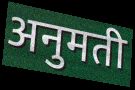
अनुमती